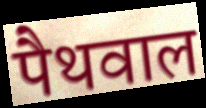
पैथवाल